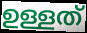
ഉള്ളത്